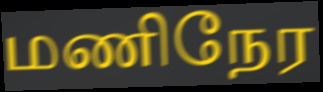
மணிநேர